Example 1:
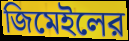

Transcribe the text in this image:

জিমেইলের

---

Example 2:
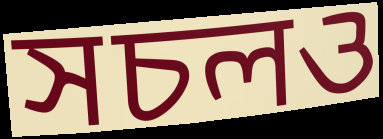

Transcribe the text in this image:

সচলও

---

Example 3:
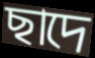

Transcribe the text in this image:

ছাদে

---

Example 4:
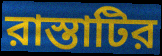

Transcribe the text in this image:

রাস্তাটির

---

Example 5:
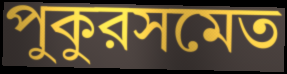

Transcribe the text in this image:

পুকুরসমেত